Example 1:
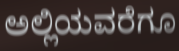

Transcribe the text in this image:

ಅಲ್ಲಿಯವರೆಗೂ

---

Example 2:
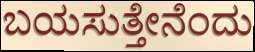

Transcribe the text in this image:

ಬಯಸುತ್ತೇನೆಂದು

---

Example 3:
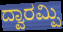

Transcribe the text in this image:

ದ್ವಾರಮ್ಪಿ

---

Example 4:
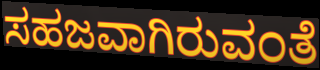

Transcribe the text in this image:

ಸಹಜವಾಗಿರುವಂತೆ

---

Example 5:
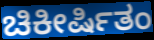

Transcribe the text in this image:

ಚಿಕೀರ್ಷಿತಂ